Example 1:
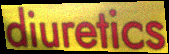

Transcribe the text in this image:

diuretics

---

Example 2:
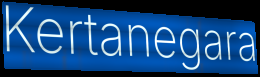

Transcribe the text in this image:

Kertanegara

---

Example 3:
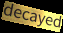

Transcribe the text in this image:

decayed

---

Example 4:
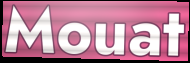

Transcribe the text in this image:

Mouat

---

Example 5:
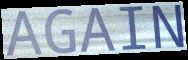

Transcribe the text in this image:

AGAIN